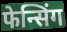
फेन्सिंग